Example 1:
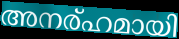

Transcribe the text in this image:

അനര്ഹമായി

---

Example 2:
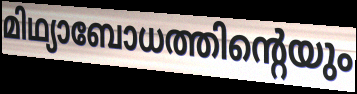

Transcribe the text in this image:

മിഥ്യാബോധത്തിന്റെയും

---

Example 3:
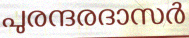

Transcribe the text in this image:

പുരന്ദരദാസർ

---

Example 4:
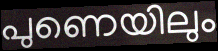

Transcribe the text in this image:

പുണെയിലും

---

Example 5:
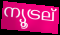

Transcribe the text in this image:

ന്യൂട്രല്